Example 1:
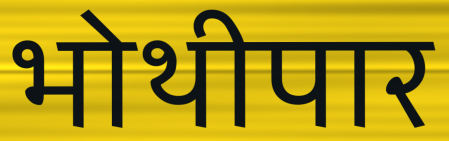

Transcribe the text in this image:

भोथीपार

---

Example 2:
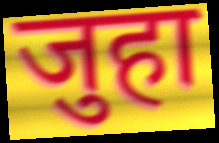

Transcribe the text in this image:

जुहा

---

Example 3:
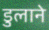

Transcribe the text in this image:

डुलाने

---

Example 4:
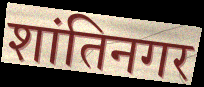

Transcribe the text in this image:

शांतिनगर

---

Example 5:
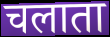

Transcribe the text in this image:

चलाता